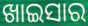
ଖାଇସାର